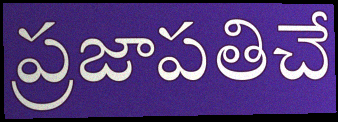
ప్రజాపతిచే